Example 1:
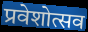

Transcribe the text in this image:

प्रवेशोत्सव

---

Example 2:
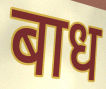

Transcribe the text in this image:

बाध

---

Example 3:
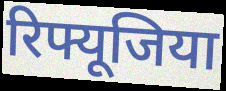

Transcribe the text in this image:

रिफ्यूजिया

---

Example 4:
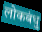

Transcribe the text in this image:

लोकबंधु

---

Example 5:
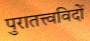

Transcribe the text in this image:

पुरातत्त्वविदों